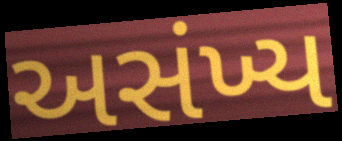
અસંખ્ય